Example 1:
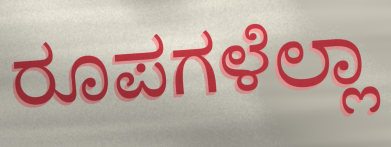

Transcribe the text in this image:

ರೂಪಗಳೆಲ್ಲಾ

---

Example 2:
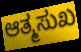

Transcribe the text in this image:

ಆತ್ಮಸುಖ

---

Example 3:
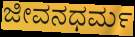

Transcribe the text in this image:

ಜೀವನಧರ್ಮ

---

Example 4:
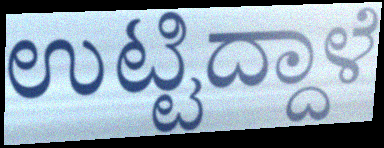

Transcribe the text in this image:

ಉಟ್ಟಿದ್ದಾಳೆ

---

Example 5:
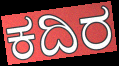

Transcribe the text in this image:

ಕದಿರ